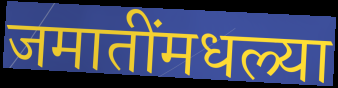
जमातींमधल्या